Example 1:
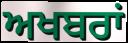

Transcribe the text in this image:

ਅਖਬਰਾਂ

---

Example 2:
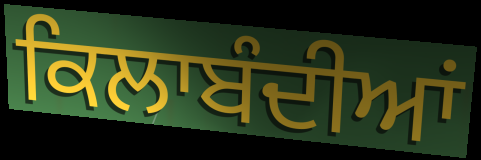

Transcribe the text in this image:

ਕਿਲਾਬੰਦੀਆਂ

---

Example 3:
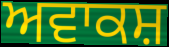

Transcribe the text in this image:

ਅਵਾਕਸ਼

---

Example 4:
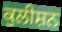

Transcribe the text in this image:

ਕੁਲੀਸ਼ਨ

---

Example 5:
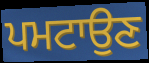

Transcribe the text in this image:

ਪਮਟਾਉਣ